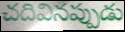
చదివినప్పుడు